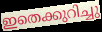
ഇതെക്കുറിച്ചു